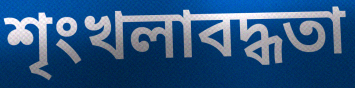
শৃংখলাবদ্ধতা